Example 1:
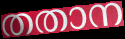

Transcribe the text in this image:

തതാന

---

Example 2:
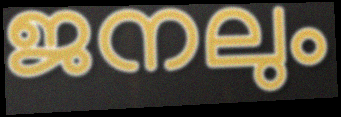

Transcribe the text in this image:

ജനലും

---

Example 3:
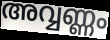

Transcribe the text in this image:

അവ്വണ്ണം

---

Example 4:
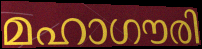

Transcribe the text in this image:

മഹാഗൗരി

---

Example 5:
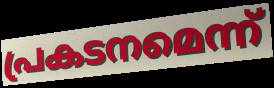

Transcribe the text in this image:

പ്രകടനമെന്ന്